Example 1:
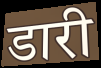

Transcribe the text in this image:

डारी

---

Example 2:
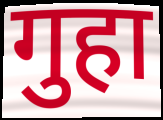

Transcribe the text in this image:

गुहा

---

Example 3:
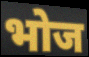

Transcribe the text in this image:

भोज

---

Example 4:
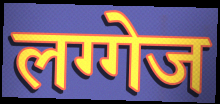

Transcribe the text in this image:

लग्गेज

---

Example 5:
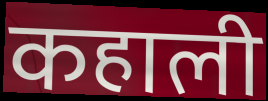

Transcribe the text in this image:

कहाली